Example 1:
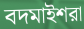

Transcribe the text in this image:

বদমাইশরা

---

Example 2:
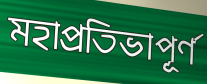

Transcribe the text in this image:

মহাপ্রতিভাপূর্ণ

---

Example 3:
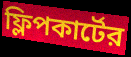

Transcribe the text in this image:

ফ্লিপকার্টের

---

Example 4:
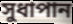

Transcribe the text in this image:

সুধাপান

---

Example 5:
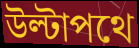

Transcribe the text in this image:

উল্টাপথে